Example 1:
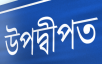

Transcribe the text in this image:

উপদ্বীপত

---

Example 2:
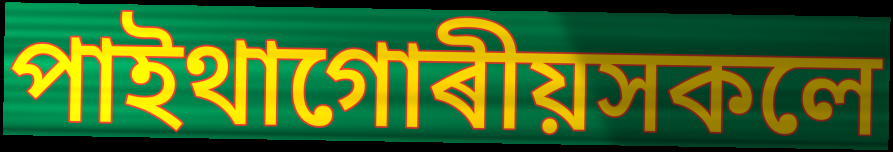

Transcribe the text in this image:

পাইথাগোৰীয়সকলে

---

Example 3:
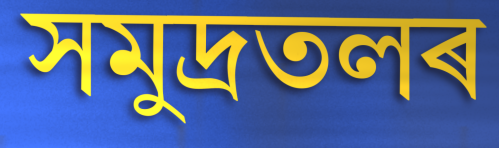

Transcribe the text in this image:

সমুদ্ৰতলৰ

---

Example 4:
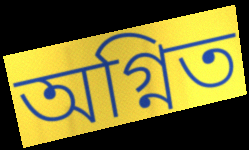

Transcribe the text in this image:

অগ্নিত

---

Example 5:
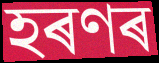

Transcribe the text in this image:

হৰণৰ